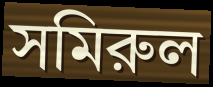
সমিরুল